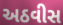
અઠવીસ